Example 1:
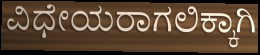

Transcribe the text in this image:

ವಿಧೇಯರಾಗಲಿಕ್ಕಾಗಿ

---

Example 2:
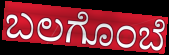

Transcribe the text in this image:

ಬಲಗೊಂಬೆ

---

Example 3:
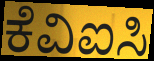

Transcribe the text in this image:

ಕೆವಿಐಸಿ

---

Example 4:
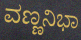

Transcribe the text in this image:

ವಣ್ಣನಿಭಾ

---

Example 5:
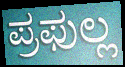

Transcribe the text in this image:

ಪ್ರಫುಲ್ಲ